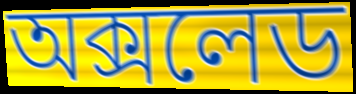
অক্সলেড